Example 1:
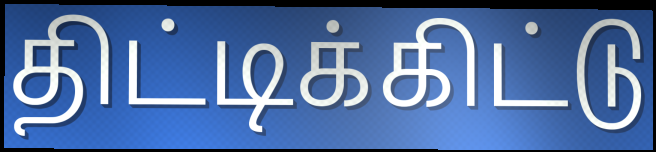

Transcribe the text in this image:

திட்டிக்கிட்டு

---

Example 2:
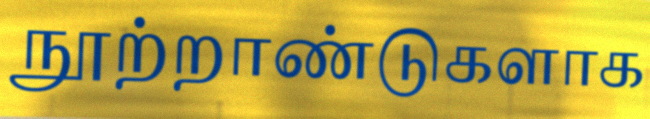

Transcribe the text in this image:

நூற்றாண்டுகளாக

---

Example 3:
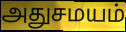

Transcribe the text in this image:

அதுசமயம்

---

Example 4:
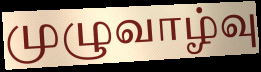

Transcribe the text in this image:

முழுவாழ்வு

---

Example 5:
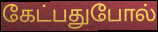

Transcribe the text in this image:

கேட்பதுபோல்